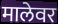
मालेवर